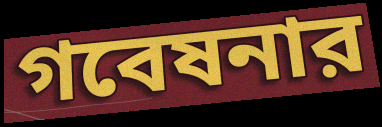
গবেষনার